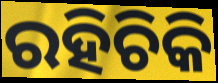
ରହିଚିକି